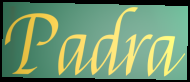
Padra